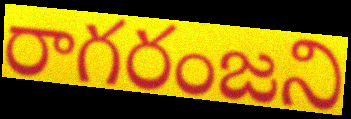
రాగరంజని